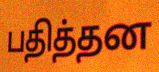
பதித்தன